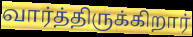
வார்த்திருக்கிறார்